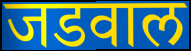
जडवाल